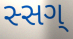
સ્સગ્